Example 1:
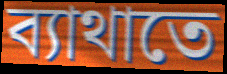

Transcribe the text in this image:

ব্যাথাতে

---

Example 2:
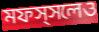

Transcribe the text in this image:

মফস্‌সলেও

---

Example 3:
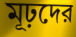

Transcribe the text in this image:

মূঢ়দের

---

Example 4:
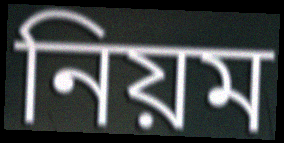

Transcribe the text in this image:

নিয়ম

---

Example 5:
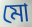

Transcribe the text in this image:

মো